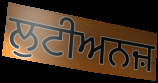
ਲੁਟੀਅਨਜ਼